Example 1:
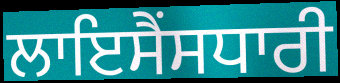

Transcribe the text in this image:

ਲਾਇਸੈਂਸਧਾਰੀ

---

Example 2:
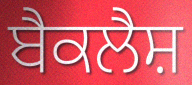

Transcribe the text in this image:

ਬੈਕਲੈਸ਼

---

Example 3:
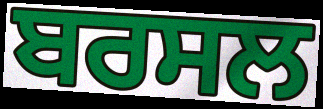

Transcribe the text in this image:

ਬਰਸਲ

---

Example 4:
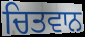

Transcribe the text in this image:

ਚਿਤਵਾਨ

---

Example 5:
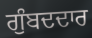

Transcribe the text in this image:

ਗੁੰਬਦਦਾਰ